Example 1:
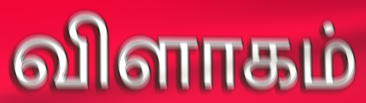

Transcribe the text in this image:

விளாகம்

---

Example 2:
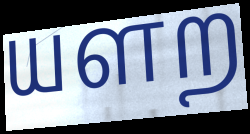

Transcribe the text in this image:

யளற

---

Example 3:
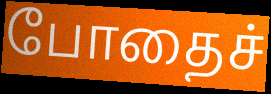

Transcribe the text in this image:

போதைச்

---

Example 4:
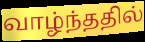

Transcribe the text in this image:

வாழ்ந்ததில்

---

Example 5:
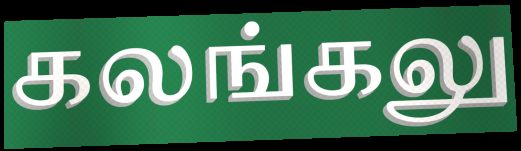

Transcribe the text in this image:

கலங்கலு